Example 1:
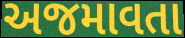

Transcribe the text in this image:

અજમાવતા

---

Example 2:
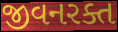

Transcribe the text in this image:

જીવનરક્ત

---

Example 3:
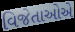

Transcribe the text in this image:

વિજેતાઓએ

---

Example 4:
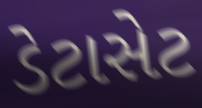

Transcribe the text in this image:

ડેટાસેટ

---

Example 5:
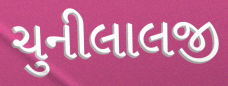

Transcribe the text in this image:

ચુનીલાલજી